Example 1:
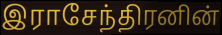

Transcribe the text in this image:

இராசேந்திரனின்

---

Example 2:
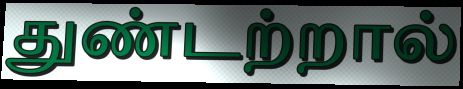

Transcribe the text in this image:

துண்டற்றால்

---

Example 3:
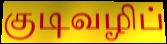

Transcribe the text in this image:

குடிவழிப்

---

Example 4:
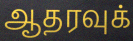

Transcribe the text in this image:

ஆதரவுக்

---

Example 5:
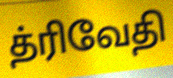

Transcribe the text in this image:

த்ரிவேதி